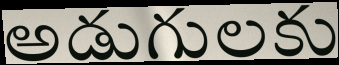
అడుగులకు